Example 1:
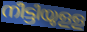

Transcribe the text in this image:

നീട്ടിയുളള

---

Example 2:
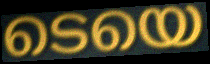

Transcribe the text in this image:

ടെയെ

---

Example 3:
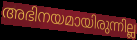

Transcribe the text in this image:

അഭിനയമായിരുന്നില്ല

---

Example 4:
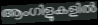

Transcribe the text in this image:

ആംഗിളുകളിൽ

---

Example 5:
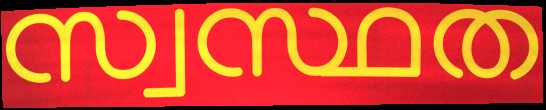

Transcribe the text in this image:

സ്വസ്ഥത